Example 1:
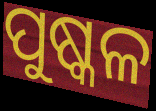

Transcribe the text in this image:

ପୁଷ୍କଳ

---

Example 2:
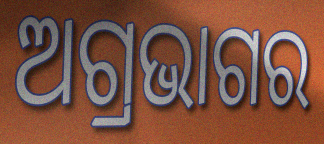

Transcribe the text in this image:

ଅଗ୍ରଭାଗର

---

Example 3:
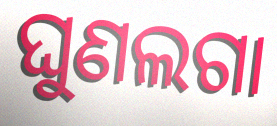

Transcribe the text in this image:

ଘୁଣଲଗା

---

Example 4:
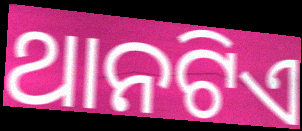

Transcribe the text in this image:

ଥାନଟିଏ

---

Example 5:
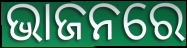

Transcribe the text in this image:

ଭାଜନରେ